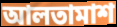
আলতামাশ